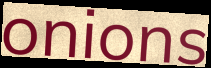
onions